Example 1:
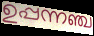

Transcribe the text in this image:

ഉപ്പന്നഞ്ച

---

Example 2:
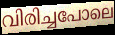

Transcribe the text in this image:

വിരിച്ചപോലെ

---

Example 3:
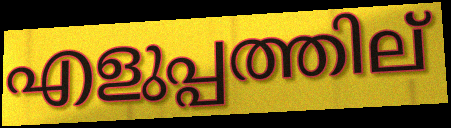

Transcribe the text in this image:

എളുപ്പത്തില്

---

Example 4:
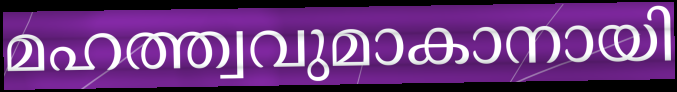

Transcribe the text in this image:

മഹത്ത്വവുമാകാനായി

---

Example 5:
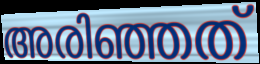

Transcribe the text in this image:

അരിഞ്ഞത്